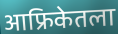
आफ्रिकेतला